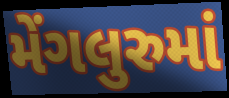
મેંગલુરુમાં